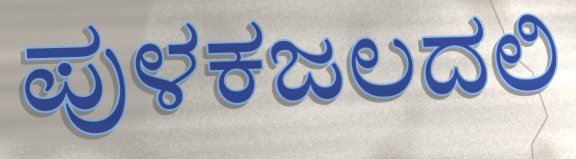
ಪುಳಕಜಲದಲಿ